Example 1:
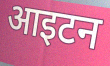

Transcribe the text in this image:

आइटन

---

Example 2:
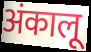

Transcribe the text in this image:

अंकालू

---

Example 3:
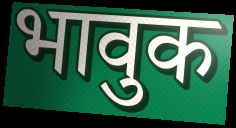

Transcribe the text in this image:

भावुक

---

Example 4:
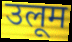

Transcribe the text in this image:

उलूम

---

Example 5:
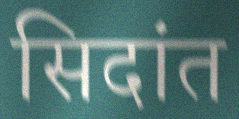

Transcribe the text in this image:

सिदांत